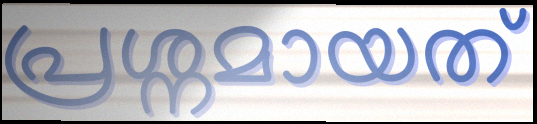
പ്രശ്നമായത്